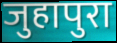
जुहापुरा